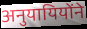
अनुयायियोंने